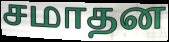
சமாதன